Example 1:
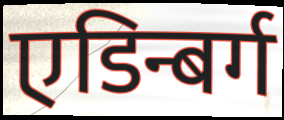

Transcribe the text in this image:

एडिन्बर्ग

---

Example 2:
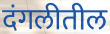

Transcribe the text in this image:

दंगलीतील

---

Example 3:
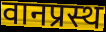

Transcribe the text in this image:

वानप्रस्थ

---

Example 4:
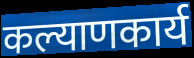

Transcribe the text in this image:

कल्याणकार्य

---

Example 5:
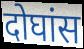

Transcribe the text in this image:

दोघांस